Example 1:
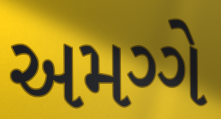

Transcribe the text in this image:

અમગ્ગે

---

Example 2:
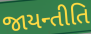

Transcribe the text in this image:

જાયન્તીતિ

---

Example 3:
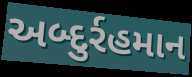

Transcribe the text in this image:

અબ્દુર્રહમાન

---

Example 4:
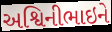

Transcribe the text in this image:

અશ્વિનીભાઇને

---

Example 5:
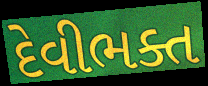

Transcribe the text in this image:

દેવીભક્ત